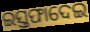
ଇସ୍ତଫାଦେଇ